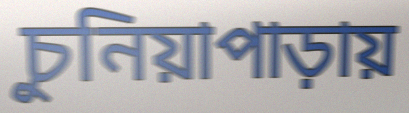
চুনিয়াপাড়ায়